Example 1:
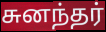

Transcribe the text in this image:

சுனந்தர்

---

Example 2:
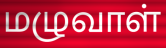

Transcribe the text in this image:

மழுவாள்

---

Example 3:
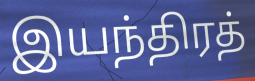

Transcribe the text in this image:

இயந்திரத்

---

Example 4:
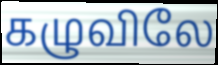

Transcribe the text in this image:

கழுவிலே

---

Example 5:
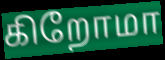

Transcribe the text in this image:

கிறோமா